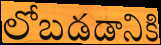
లోబడడానికి